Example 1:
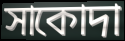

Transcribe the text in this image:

সাকোদা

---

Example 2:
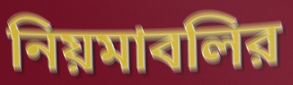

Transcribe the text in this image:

নিয়মাবলির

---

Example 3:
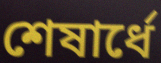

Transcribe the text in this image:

শেষার্ধে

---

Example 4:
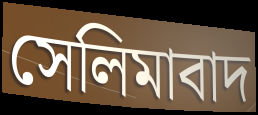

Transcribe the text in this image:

সেলিমাবাদ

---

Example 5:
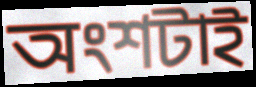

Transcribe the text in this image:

অংশটাই